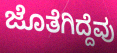
ಜೊತೆಗಿದ್ದೆವು